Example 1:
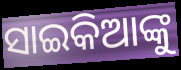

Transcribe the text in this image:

ସାଇକିଆଙ୍କୁ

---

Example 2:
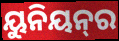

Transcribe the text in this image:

ୟୁନିୟନ୍‌ର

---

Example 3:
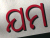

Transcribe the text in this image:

ଯମ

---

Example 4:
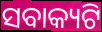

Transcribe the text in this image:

ସବାକ୍ୟଟି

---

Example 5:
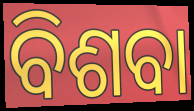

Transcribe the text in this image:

ବିଶବା